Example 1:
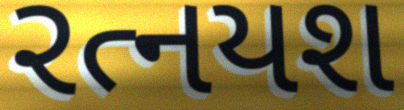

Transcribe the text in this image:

રત્નયશ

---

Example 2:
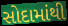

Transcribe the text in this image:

સોદામાંથી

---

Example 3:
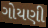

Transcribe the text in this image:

ગોયણી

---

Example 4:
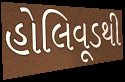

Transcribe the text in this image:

હોલિવૂડથી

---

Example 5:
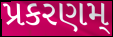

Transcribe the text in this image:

પ્રકરણમ્